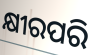
କ୍ଷୀରପରି